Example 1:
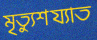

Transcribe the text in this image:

মৃত্যুশয্যাত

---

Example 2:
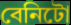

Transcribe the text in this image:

বেনিটো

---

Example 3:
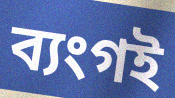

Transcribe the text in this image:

ব্যংগই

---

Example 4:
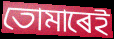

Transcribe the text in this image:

তোমাৰেই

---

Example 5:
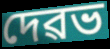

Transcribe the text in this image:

দেৱভ